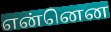
என்னென